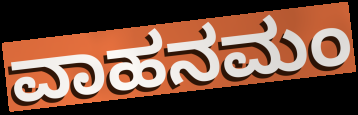
ವಾಹನಮಂ